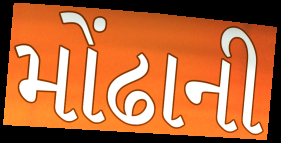
મોંઢાની